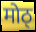
मोठ्